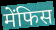
मेंफिस